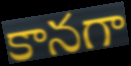
కానగా